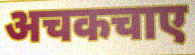
अचकचाए